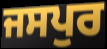
ਜਸਪੁਰ